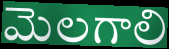
మెలగాలి